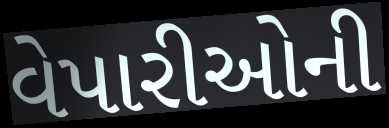
વેપારીઓની